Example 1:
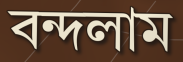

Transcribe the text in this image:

বন্দলাম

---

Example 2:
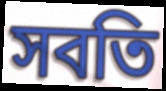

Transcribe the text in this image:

সবতি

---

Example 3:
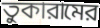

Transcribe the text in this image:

তুকারামের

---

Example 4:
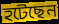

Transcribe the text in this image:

হটেছেন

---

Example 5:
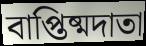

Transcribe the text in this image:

বাপ্তিষ্মদাতা